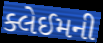
ક્લેઈમની